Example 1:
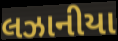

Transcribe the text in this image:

લઝાનીયા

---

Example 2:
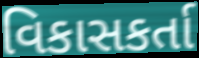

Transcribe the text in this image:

વિકાસકર્તા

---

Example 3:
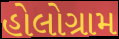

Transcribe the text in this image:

હોલોગ્રામ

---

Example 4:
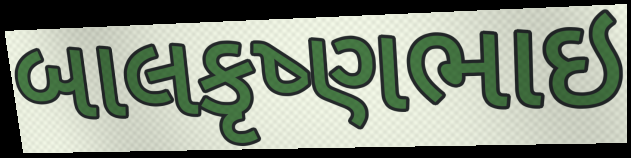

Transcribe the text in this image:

બાલકૃષ્ણભાઇ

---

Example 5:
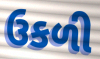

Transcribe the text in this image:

ઉકળી